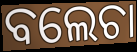
ବଲେଚା